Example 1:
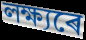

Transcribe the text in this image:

লক্ষ্যৰে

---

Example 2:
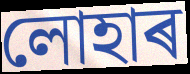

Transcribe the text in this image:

লোহাৰ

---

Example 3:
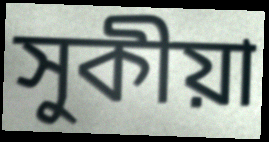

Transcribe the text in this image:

সুকীয়া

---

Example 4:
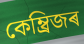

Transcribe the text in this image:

কেম্ব্ৰিজৰ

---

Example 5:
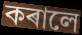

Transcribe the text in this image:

কৰালে